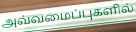
அவ்வமைப்புகளில்